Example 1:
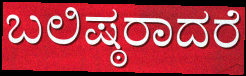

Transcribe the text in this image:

ಬಲಿಷ್ಠರಾದರೆ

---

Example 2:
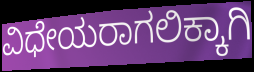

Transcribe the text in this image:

ವಿಧೇಯರಾಗಲಿಕ್ಕಾಗಿ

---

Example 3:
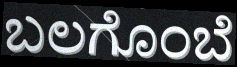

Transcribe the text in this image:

ಬಲಗೊಂಬೆ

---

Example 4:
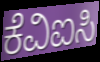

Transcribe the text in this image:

ಕೆವಿಐಸಿ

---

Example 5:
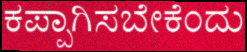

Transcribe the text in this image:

ಕಪ್ಪಾಗಿಸಬೇಕೆಂದು